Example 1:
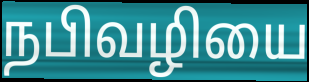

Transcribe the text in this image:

நபிவழியை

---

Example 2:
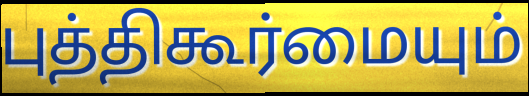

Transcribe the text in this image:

புத்திகூர்மையும்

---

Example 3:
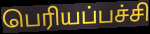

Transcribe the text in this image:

பெரியப்பச்சி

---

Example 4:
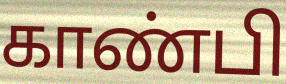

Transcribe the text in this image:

காண்பி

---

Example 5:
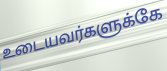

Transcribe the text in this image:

உடையவர்களுக்கே